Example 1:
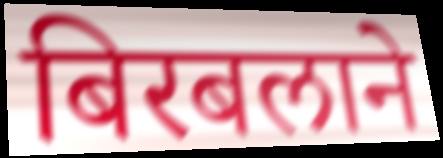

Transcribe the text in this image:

बिरबलाने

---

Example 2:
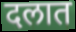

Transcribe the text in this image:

दलात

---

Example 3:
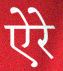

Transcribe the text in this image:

ऐरे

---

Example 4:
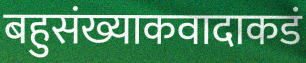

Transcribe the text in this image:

बहुसंख्याकवादाकडं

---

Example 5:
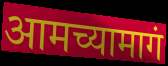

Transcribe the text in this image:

आमच्यामागं